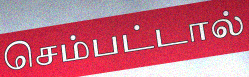
செம்பட்டால்